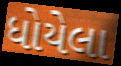
ધોયેલા